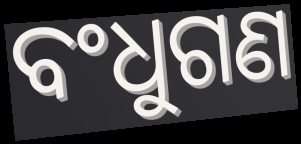
ବଂଧୁଗଣ